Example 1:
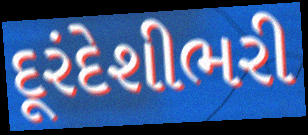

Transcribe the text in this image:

દૂરંદેશીભરી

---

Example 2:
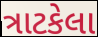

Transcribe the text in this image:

ત્રાટકેલા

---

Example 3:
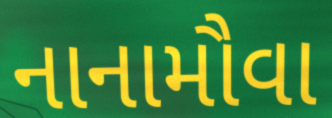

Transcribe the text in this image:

નાનામૌવા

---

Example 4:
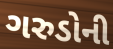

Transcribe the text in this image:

ગરુડોની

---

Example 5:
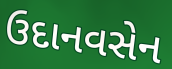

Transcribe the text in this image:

ઉદાનવસેન